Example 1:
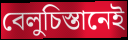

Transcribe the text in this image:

বেলুচিস্তানেই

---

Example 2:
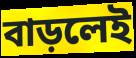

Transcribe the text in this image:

বাড়লেই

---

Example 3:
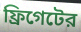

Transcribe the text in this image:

ফ্রিগেটের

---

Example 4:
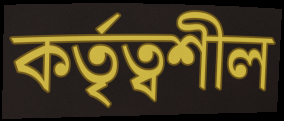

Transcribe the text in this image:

কর্তৃত্বশীল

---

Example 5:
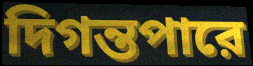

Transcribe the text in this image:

দিগন্তপারে